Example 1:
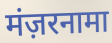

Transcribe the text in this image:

मंज़रनामा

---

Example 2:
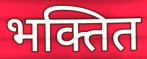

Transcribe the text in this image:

भक्तित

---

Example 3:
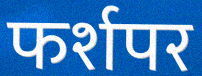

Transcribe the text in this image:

फर्शपर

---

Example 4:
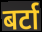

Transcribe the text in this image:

बर्टा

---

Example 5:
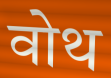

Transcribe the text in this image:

वोथ